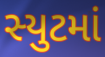
સ્યુટમાં